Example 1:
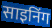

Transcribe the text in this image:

साइनिंग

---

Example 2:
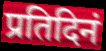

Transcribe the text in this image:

प्रतिदिनं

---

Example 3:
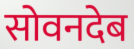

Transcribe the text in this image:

सोवनदेब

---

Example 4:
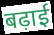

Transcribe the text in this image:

बढ़ाई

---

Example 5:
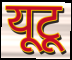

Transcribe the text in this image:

यूटू